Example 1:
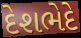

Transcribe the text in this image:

દેશભેદે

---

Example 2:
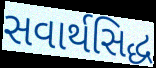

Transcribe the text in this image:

સવાર્થસિદ્ધ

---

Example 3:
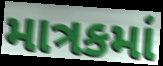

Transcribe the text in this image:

માત્રકમાં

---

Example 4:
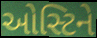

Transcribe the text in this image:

ઓસ્ટિને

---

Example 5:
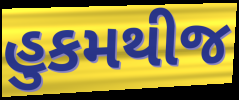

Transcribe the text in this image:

હુકમથીજ